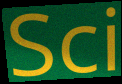
Sci